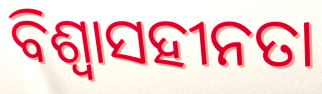
ବିଶ୍ୱାସହୀନତା